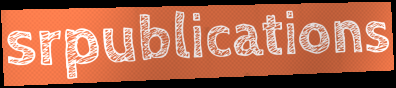
srpublications